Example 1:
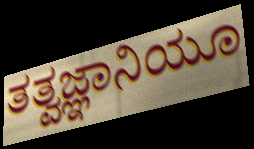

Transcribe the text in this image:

ತತ್ವಜ್ಞಾನಿಯೂ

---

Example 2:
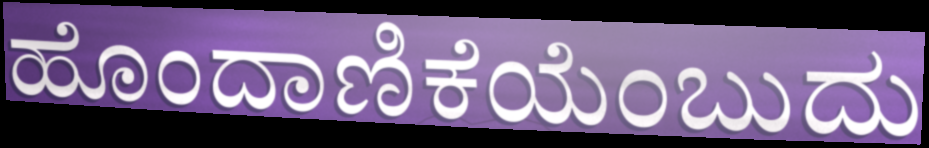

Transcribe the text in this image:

ಹೊಂದಾಣಿಕೆಯೆಂಬುದು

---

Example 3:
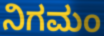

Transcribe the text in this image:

ನಿಗಮಂ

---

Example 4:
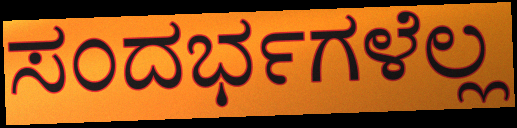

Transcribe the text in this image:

ಸಂದರ್ಭಗಳೆಲ್ಲ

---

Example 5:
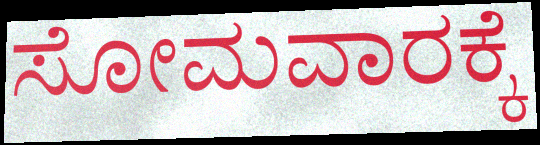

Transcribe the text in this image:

ಸೋಮವಾರಕ್ಕೆ